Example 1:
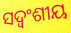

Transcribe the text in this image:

ସଦ୍ବଂଶୀୟ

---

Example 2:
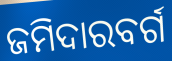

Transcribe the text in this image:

ଜମିଦାରବର୍ଗ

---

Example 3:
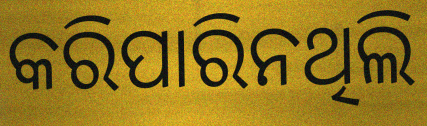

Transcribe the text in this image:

କରିପାରିନଥିଲି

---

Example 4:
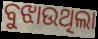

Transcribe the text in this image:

ବୁଝାଉଥିଲା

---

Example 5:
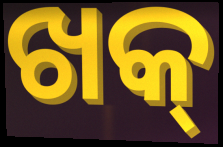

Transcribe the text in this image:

ଖକ୍